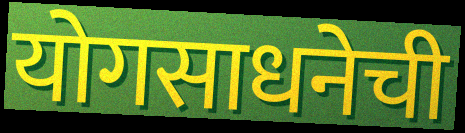
योगसाधनेची